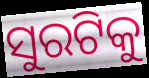
ସୁରଟିକୁ